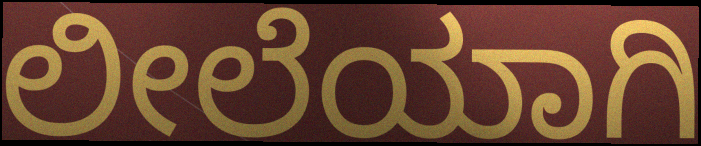
ಲೀಲೆಯಾಗಿ